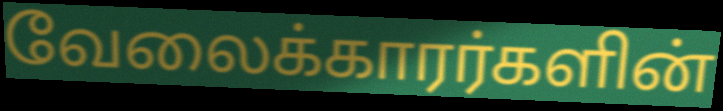
வேலைக்காரர்களின்